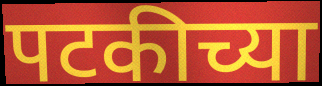
पटकीच्या